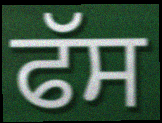
ਫੱਸ